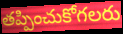
తప్పించుకోగలరు